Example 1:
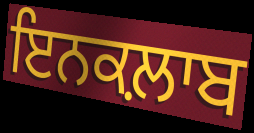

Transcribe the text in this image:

ਇਨਕ਼ਲਾਬ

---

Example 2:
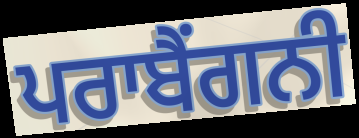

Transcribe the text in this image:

ਪਰਾਬੈਂਗਨੀ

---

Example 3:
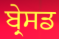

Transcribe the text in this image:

ਬ੍ਰੇਸਡ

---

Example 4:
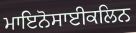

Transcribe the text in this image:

ਮਾਇਨੋਸਾਈਕਲਿਨ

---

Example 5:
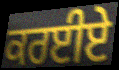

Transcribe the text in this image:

ਕਰਈਏ